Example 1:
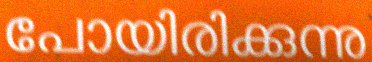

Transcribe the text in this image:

പോയിരിക്കുന്നു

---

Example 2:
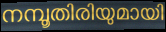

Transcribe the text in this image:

നമ്പൂതിരിയുമായി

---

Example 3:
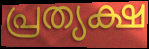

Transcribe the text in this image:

പ്രത്യക്ഷ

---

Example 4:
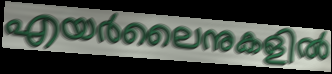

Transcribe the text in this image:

എയർലൈനുകളിൽ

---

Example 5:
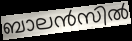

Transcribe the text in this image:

ബാലൻസിൽ